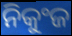
ନିକୁଂଜ